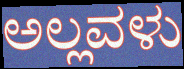
ಅಲ್ಲವಳು